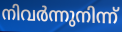
നിവർന്നുനിന്ന്